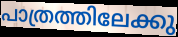
പാത്രത്തിലേക്കു